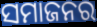
ସମାଜନର